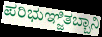
ಪರಿಭುಞ್ಜಿತಬ್ಬಾನಿ